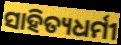
ସାହିତ୍ୟଧର୍ମୀ